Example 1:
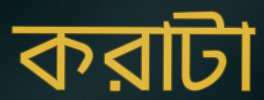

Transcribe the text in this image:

করাটা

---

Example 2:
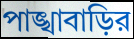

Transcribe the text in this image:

পাঙ্খাবাড়ির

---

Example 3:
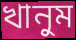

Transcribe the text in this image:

খানুম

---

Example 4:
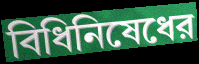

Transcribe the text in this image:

বিধিনিষেধের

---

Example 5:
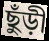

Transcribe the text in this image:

ছুঁড়ী